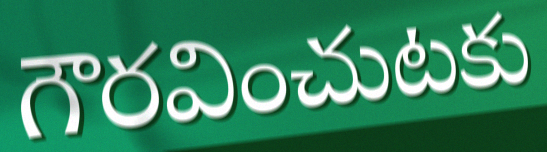
గౌరవించుటకు